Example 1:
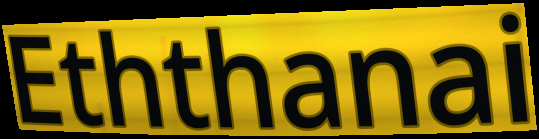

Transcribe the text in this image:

Eththanai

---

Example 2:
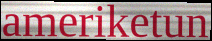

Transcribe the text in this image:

ameriketun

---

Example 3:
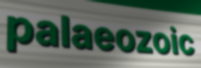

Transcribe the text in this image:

palaeozoic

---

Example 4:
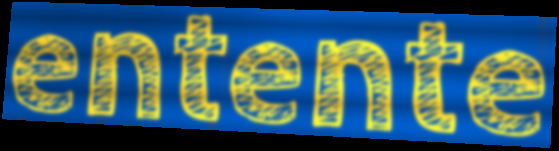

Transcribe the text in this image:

entente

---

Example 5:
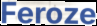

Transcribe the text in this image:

Feroze